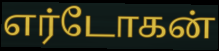
எர்டோகன்